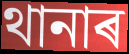
থানাৰ